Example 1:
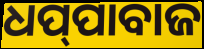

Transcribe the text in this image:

ଧପ୍‌ପାବାଜ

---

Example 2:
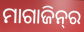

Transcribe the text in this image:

ମାଗାଜିନ୍‍ର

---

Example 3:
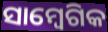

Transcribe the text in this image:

ସାମ୍ବେଗିକ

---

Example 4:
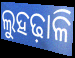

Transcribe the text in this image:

ଲୁହଢ଼ାଳି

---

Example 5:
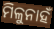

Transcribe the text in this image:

ମିଳୁନାହଁ